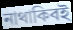
নাথাকিবই